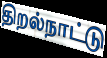
திறல்நாட்டு